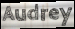
Audrey